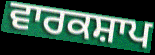
ਵਾਰਕਸ਼ਾਪ